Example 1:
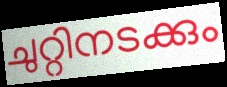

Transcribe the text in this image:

ചുറ്റിനടക്കും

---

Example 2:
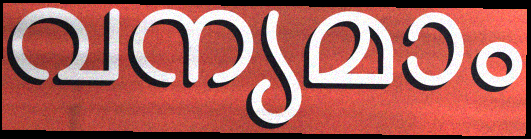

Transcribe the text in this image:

വന്യമാം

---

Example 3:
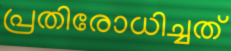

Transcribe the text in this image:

പ്രതിരോധിച്ചത്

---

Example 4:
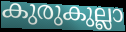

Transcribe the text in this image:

കുരുകുല്ലാ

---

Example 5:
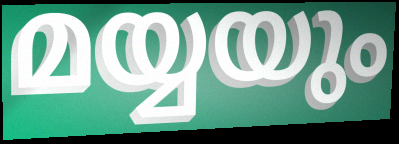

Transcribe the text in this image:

മയ്യയും